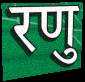
रणु